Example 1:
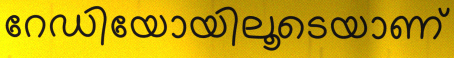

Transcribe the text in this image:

റേഡിയോയിലൂടെയാണ്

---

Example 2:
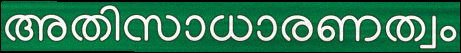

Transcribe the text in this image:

അതിസാധാരണത്വം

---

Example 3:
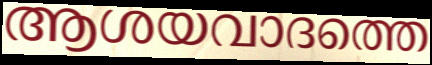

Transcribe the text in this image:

ആശയവാദത്തെ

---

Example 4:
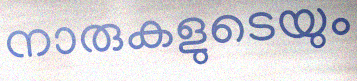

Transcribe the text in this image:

നാരുകളുടെയും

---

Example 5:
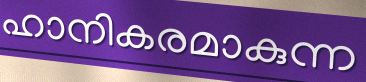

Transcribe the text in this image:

ഹാനികരമാകുന്ന